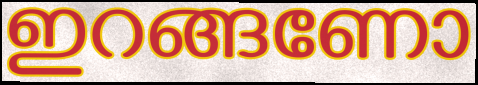
ഇറങ്ങണോ